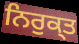
ਨਿਰੁਕ੍ਤ